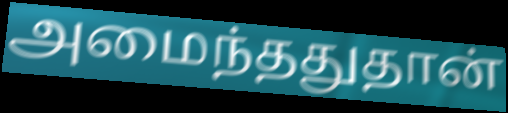
அமைந்ததுதான்